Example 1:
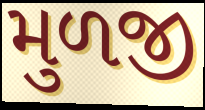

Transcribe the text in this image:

મુળજી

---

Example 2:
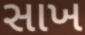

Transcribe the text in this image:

સાખ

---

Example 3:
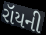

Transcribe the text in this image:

રૉયની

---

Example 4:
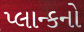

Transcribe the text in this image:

પ્લાન્કનો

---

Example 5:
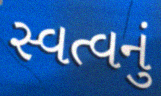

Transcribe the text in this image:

સ્વત્વનું